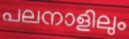
പലനാളിലും